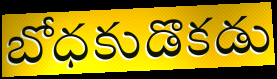
బోధకుడొకడు